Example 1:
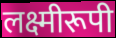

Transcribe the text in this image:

लक्ष्मीरूपी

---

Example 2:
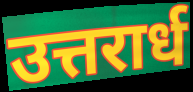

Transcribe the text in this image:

उत्तरार्ध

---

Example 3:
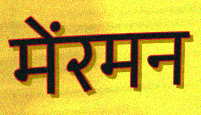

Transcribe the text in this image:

मेंरमन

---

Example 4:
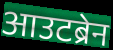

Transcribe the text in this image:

आउटब्रेन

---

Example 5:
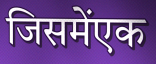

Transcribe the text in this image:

जिसमेंएक